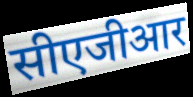
सीएजीआर